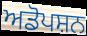
ਅਡੋਪਸ਼ਨ